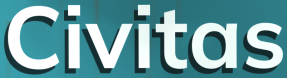
Civitas